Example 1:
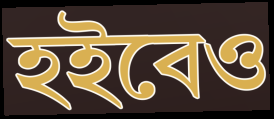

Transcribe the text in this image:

হইবেও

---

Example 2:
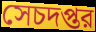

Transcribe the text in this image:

সেচদপ্তর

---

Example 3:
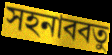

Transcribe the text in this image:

সহনাববতু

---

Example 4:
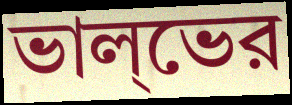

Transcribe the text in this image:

ভাল্ভের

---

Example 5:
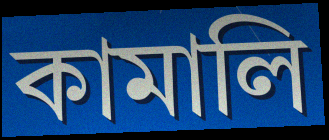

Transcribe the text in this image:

কামালি